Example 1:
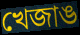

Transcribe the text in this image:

খেজাঙ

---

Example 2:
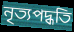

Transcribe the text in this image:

নৃত্যপদ্ধতি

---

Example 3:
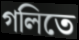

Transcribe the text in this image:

গলিতে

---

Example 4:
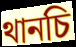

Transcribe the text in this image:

থানচি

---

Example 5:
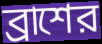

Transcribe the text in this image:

ব্রাশের